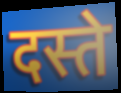
दस्ते